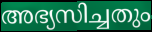
അഭ്യസിച്ചതും